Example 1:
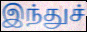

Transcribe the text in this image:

இந்துச்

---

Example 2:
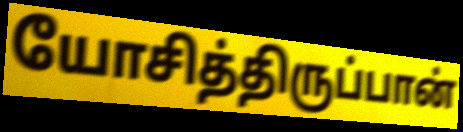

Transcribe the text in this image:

யோசித்திருப்பான்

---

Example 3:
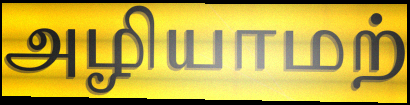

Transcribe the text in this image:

அழியாமற்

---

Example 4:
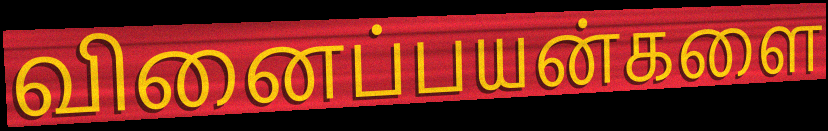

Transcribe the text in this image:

வினைப்பயன்களை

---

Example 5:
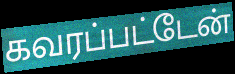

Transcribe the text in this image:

கவரப்பட்டேன்